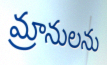
మ్రానులను